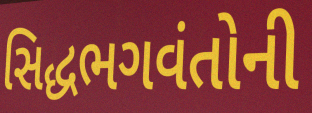
સિદ્ધભગવંતોની